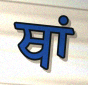
ਥਾਂ